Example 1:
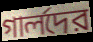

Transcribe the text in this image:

গার্লদের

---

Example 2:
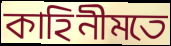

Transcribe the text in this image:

কাহিনীমতে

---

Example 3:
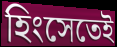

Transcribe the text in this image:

হিংসেতেই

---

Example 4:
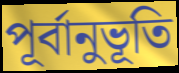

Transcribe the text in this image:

পূর্বানুভূতি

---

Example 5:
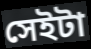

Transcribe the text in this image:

সেইটা